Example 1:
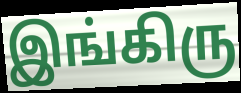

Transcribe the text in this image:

இங்கிரு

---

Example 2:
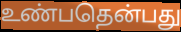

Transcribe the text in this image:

உண்பதென்பது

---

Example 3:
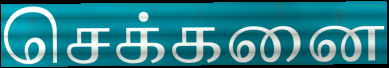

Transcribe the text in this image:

செக்கனை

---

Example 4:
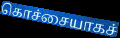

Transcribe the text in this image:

கொச்சையாகச்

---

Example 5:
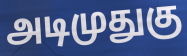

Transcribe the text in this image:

அடிமுதுகு